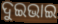
ଦୁଇଭାଇ